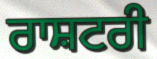
ਰਾਸ਼ਟਰੀ